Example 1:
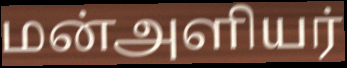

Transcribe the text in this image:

மன்அளியர்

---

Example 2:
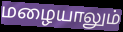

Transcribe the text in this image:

மழையாலும்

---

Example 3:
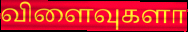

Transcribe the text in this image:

விளைவுகளா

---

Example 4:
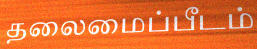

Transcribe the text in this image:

தலைமைப்பீடம்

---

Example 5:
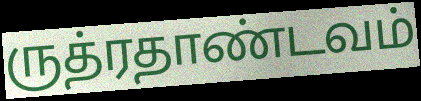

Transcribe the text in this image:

ருத்ரதாண்டவம்